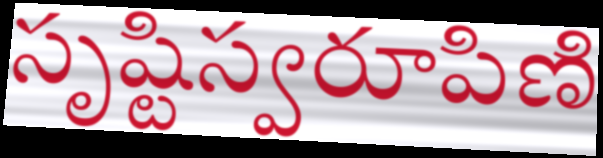
సృష్టిస్వరూపిణి